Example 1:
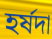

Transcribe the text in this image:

হর্ষদা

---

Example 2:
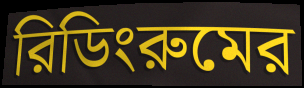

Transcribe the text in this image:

রিডিংরুমের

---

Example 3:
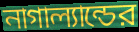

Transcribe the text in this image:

নাগাল্যান্ডের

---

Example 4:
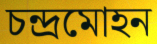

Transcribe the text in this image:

চন্দ্রমোহন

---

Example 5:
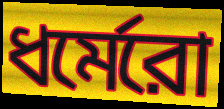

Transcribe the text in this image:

ধর্মেরো